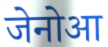
जेनोआ